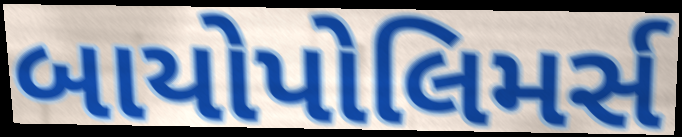
બાયોપોલિમર્સ